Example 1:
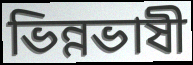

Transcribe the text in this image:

ভিন্নভাষী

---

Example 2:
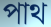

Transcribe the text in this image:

পাথ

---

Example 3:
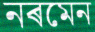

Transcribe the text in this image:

নৰমেন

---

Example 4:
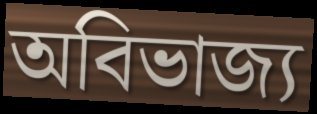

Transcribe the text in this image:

অবিভাজ্য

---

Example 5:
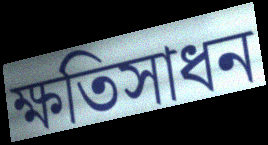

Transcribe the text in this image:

ক্ষতিসাধন